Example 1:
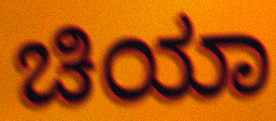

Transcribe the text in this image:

ಚಿಯಾ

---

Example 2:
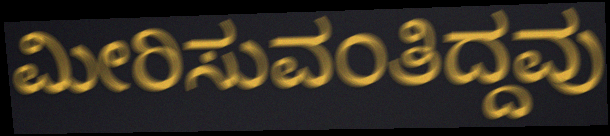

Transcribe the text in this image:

ಮೀರಿಸುವಂತಿದ್ದವು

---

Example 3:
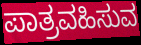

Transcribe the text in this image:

ಪಾತ್ರವಹಿಸುವ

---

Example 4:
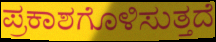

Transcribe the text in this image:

ಪ್ರಕಾಶಗೊಳಿಸುತ್ತದೆ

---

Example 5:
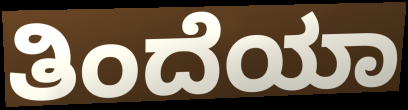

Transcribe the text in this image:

ತಿಂದೆಯಾ